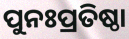
ପୁନଃପ୍ରତିଷ୍ଠା